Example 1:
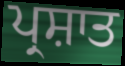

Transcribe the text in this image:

ਪ੍ਰਸ਼ਾਤ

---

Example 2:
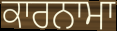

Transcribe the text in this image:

ਕਾਰਨਾਮਾ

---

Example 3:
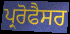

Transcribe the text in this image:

ਪ੍ਰਰੋਫੈਸਰ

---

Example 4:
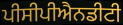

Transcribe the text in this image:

ਪੀਸੀਪੀਐਨਡੀਟੀ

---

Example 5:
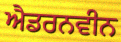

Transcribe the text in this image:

ਐਡਰਨਵੀਨ